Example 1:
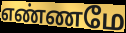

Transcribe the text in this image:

எண்ணமே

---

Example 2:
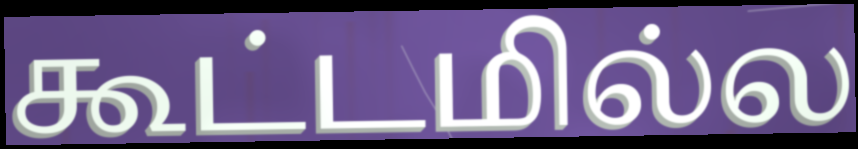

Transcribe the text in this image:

கூட்டமில்ல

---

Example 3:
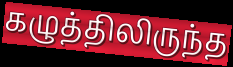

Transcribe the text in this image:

கழுத்திலிருந்த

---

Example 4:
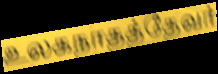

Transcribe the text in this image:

உலகநாதத்தேவர்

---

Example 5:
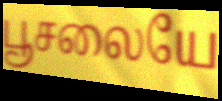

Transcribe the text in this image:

பூசலையே